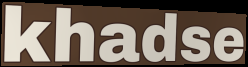
khadse